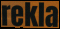
rekla